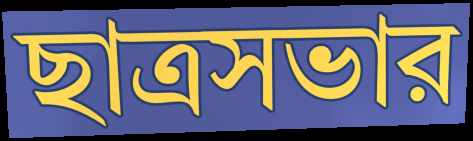
ছাত্রসভার